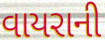
વાયરાની